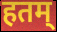
हतम्